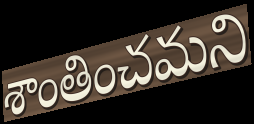
శాంతించమని